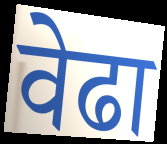
वेढा